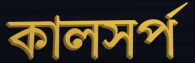
কালসর্প